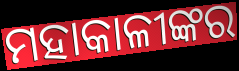
ମହାକାଳୀଙ୍କର